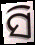
ସି